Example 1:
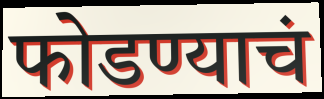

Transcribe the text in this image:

फोडण्याचं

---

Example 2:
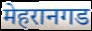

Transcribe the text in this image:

मेहरानगड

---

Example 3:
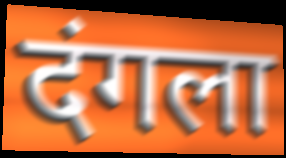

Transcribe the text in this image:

दंगला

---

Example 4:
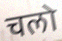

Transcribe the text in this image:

चलो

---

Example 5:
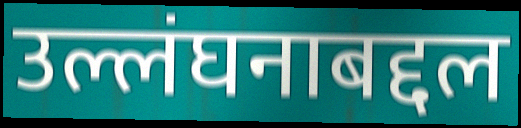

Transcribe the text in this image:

उल्लंघनाबद्दल